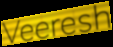
Veeresh